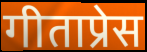
गीताप्रेस